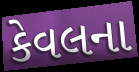
કેવલના